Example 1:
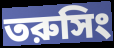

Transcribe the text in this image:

তরুসিং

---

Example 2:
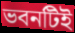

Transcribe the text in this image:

ভবনটিই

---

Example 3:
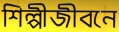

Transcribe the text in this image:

শিল্পীজীবনে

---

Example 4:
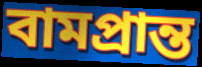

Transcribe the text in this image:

বামপ্রান্ত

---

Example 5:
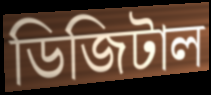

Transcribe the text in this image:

ডিজিটাল